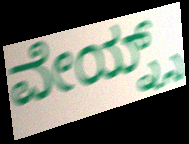
ವೇಯ್ನ್ಸ್